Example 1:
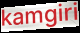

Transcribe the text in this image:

kamgiri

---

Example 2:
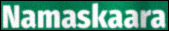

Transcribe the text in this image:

Namaskaara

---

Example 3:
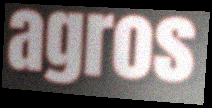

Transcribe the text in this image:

agros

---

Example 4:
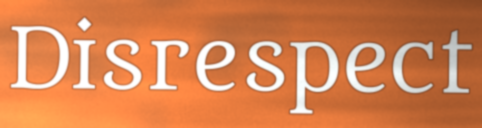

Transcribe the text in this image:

Disrespect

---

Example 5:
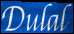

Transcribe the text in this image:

Dulal